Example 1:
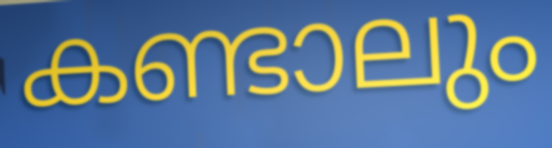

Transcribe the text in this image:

കണ്ടാലും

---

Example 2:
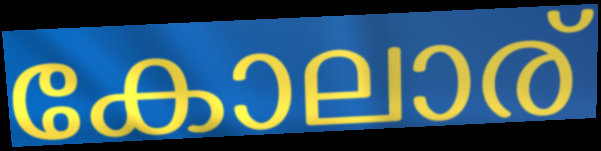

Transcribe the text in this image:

കോലാര്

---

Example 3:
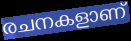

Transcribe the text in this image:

രചനകളാണ്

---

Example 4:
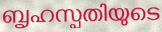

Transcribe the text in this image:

ബൃഹസ്പതിയുടെ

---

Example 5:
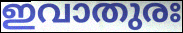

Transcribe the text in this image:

ഇവാതുരഃ